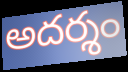
అదర్శం